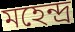
মহেন্দ্র